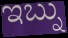
ಇಬ್ನು